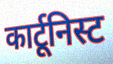
कार्टूनिस्ट